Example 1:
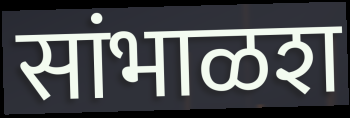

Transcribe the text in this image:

सांभाळश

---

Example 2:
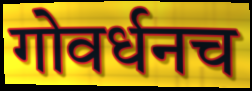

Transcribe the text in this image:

गोवर्धनच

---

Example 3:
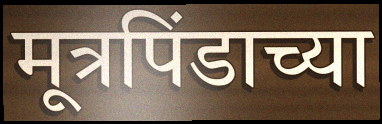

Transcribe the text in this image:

मूत्रपिंडाच्या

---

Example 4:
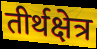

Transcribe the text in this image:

तीर्थक्षेत्र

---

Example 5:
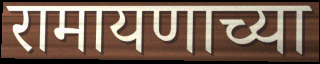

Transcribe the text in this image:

रामायणाच्या